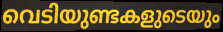
വെടിയുണ്ടകളുടെയും